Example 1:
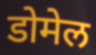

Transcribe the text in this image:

डोमेल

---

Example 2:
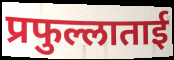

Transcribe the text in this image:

प्रफुल्लाताई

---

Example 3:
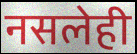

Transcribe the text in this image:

नसलेही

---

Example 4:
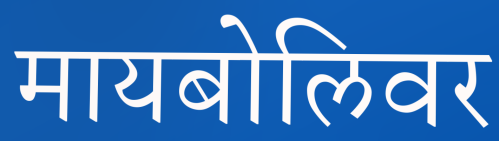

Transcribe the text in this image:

मायबोलिवर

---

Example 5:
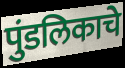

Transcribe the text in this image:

पुंडलिकाचे